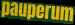
pauperum